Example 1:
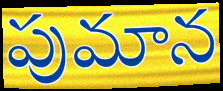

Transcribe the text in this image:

పుమాన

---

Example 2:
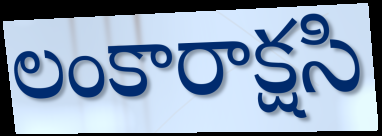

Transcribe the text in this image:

లంకారాక్షసి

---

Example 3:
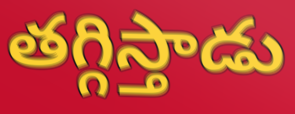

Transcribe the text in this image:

తగ్గిస్తాడు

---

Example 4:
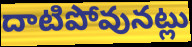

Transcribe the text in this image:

దాటిపోవునట్లు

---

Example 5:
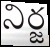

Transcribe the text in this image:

నిర్జ